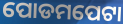
ପୋଡମପେଟା